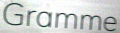
Gramme